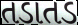
તડાતડ